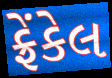
ફ્રેંકેલ